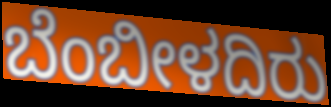
ಬೆಂಬೀಳದಿರು